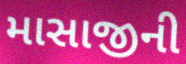
માસાજીની